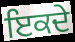
ਇਕਦੇ